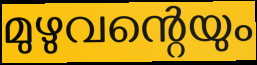
മുഴുവന്റെയും